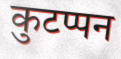
कुटप्पन